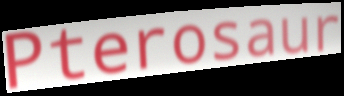
Pterosaur